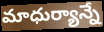
మాధుర్యాన్నే